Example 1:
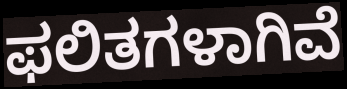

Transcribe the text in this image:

ಫಲಿತಗಳಾಗಿವೆ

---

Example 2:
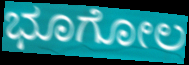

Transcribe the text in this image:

ಭೂಗೋಲ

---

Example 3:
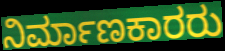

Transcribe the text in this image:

ನಿರ್ಮಾಣಕಾರರು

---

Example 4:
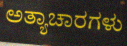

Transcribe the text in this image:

ಅತ್ಯಾಚಾರಗಳು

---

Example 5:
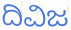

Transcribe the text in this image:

ದಿವಿಜ